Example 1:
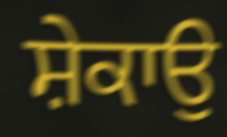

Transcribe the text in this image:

ਸ਼ੇਕਾਉ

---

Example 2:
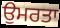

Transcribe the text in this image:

ਉਮਰਤਾ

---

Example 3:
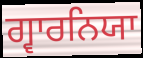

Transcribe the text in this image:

ਗ੍ਵਾਰਨਿਯਾ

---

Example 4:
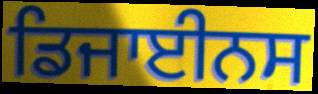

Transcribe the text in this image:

ਡਿਜਾਈਨਸ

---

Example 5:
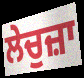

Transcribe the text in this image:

ਲੇਚੁਜ਼ਾ